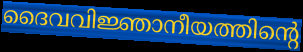
ദൈവവിജ്ഞാനീയത്തിന്റെ